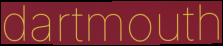
dartmouth